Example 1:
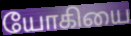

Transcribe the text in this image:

யோகியை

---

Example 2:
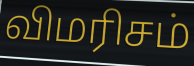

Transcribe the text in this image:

விமரிசம்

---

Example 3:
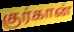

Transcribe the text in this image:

குர்கான்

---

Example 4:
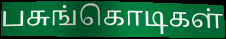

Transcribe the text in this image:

பசுங்கொடிகள்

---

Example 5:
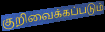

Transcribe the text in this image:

குறிவைக்கப்படும்